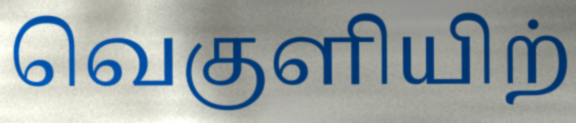
வெகுளியிற்